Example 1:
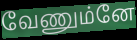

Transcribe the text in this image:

வேணும்னே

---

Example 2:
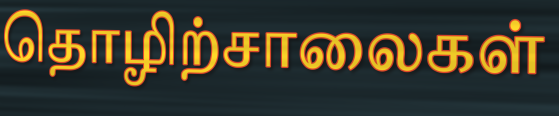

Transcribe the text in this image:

தொழிற்சாலைகள்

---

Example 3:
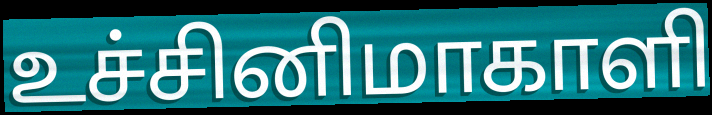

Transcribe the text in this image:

உச்சினிமாகாளி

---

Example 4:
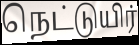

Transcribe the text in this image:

நெட்டுயிர்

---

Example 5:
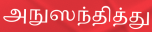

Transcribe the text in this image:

அநுஸந்தித்து